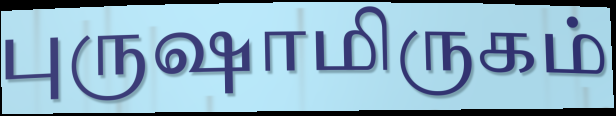
புருஷாமிருகம்